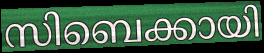
സിബെക്കായി